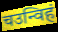
चउन्विहं